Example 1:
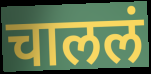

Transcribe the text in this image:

चाललं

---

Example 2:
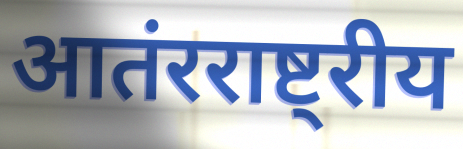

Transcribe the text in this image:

आतंरराष्ट्रीय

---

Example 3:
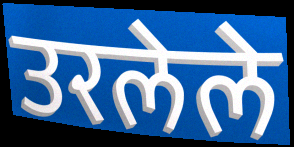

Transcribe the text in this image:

उरलेले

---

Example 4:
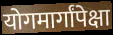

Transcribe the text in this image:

योगमार्गांपेक्षा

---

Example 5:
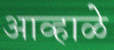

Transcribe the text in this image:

आव्हाळे